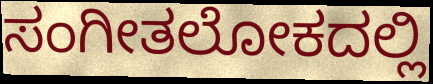
ಸಂಗೀತಲೋಕದಲ್ಲಿ